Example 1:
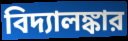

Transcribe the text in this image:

বিদ্যালঙ্কার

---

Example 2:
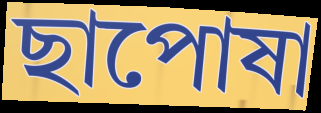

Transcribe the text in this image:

ছাপোষা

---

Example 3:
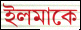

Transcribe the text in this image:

ইলমাকে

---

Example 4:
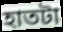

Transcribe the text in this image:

হাতটা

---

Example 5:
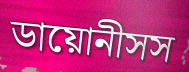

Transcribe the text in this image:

ডায়োনীসস